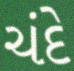
ચંદે